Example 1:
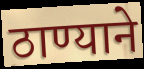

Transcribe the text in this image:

ठाण्याने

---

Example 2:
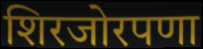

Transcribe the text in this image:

शिरजोरपणा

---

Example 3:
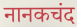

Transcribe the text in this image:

नानकचंद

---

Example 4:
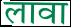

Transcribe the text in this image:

लावा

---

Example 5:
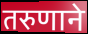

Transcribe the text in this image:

तरुणाने